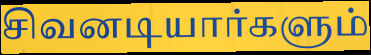
சிவனடியார்களும்